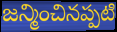
జన్మించినప్పటి